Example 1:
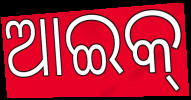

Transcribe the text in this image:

ଆଇକ୍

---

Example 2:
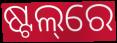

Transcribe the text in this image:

ଷ୍ଟଲ୍‌ରେ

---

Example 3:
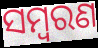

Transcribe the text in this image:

ସମ୍ୱରଣ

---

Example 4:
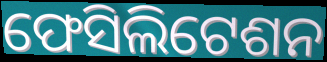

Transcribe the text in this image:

ଫେସିଲିଟେଶନ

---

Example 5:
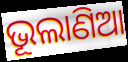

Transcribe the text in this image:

ଭୂଲାଣିଆ